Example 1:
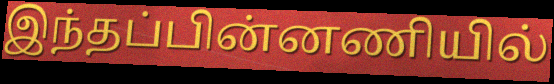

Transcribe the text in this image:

இந்தப்பின்னணியில்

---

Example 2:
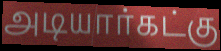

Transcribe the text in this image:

அடியார்கட்கு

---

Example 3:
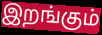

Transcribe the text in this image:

இறங்கும்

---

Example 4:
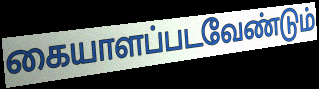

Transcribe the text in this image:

கையாளப்படவேண்டும்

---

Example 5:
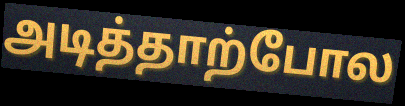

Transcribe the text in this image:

அடித்தாற்போல